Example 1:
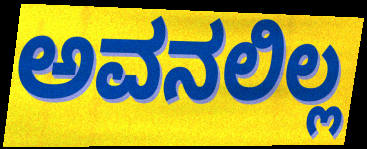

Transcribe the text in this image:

ಅವನಲಿಲ್ಲ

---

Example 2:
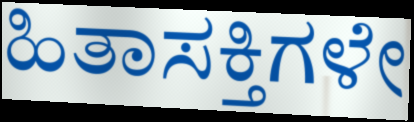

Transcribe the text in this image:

ಹಿತಾಸಕ್ತಿಗಳೇ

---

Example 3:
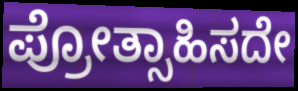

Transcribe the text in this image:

ಪ್ರೋತ್ಸಾಹಿಸದೇ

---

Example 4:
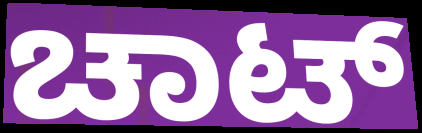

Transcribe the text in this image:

ಚಾಟ್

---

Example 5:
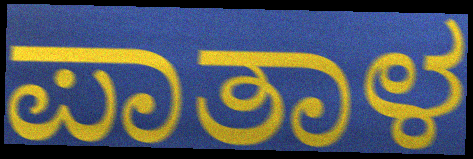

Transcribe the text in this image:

ಪಾತಾಳ